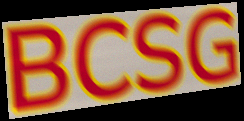
BCSG